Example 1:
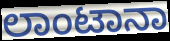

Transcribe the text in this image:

ಲಾಂಟಾನಾ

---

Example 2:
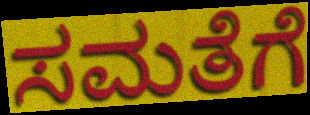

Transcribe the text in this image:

ಸಮತೆಗೆ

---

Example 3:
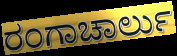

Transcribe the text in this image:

ರಂಗಾಚಾರ್ಲು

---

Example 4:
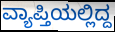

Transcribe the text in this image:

ವ್ಯಾಪ್ತಿಯಲ್ಲಿದ್ದ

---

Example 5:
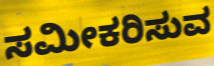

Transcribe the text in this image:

ಸಮೀಕರಿಸುವ